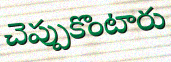
చెప్పుకొంటారు